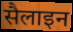
सैलाइन